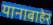
यानाबाहेर